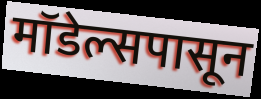
मॉडेल्सपासून